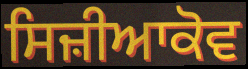
ਸਿਜ਼ੀਆਕੋਵ